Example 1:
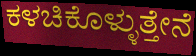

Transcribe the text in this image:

ಕಳಚಿಕೊಳ್ಳುತ್ತೇನೆ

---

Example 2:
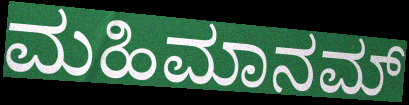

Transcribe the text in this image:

ಮಹಿಮಾನಮ್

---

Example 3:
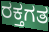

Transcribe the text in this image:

ರಕ್ತಗತ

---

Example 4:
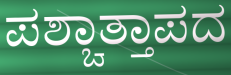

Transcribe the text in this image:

ಪಶ್ಚಾತ್ತಾಪದ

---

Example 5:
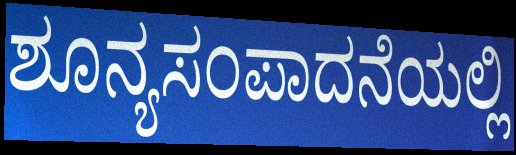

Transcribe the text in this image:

ಶೂನ್ಯಸಂಪಾದನೆಯಲ್ಲಿ